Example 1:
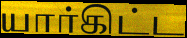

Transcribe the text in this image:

யார்கிட்ட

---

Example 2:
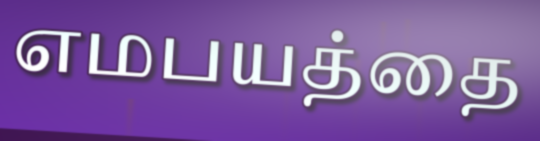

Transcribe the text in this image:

எமபயத்தை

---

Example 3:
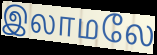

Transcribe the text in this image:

இலாமலே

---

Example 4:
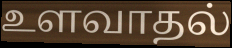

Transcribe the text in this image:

உளவாதல்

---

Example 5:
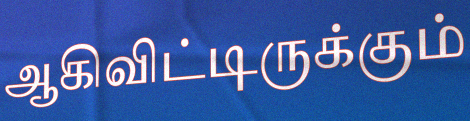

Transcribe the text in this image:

ஆகிவிட்டிருக்கும்